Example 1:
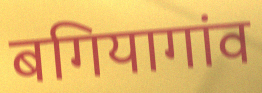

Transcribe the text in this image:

बगियागांव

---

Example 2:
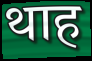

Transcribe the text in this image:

थाह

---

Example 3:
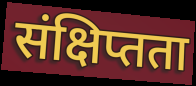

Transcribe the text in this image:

संक्षिप्तता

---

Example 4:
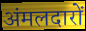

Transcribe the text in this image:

अंमलदारों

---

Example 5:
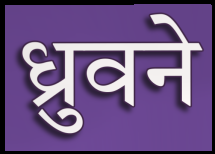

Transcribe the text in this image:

ध्रुवने